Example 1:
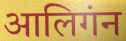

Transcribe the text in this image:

आलिगंन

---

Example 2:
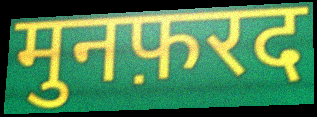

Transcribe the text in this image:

मुनफ़रद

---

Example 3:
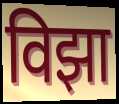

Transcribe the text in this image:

विझा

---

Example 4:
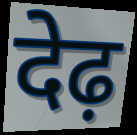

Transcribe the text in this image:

देढ़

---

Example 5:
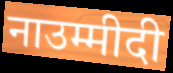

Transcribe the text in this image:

नाउम्मीदी